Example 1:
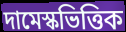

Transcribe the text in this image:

দামেস্কভিত্তিক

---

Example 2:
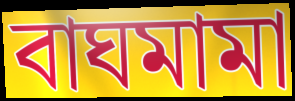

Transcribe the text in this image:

বাঘমামা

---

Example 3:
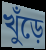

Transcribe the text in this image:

খুঁড়ে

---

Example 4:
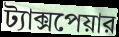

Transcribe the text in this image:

ট্যাক্সপেয়ার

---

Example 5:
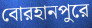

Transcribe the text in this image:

বোরহানপুরে